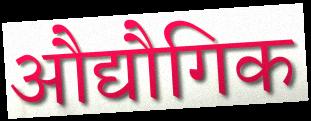
औद्यौगिक